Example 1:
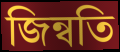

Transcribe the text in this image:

জিন্বতি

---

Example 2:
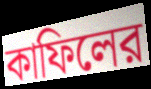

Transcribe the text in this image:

কাফিলের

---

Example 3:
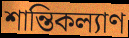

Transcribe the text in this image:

শান্তিকল্যাণ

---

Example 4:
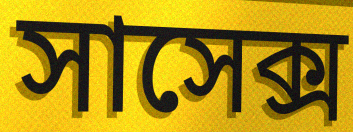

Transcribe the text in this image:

সাসেক্স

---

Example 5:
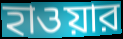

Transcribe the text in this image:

হাওয়ার